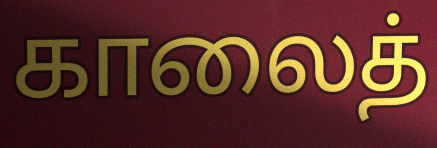
காலைத்